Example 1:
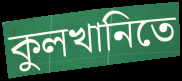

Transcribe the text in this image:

কুলখানিতে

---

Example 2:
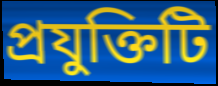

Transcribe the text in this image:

প্রযুক্তিটি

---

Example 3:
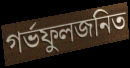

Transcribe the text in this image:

গর্ভফুলজনিত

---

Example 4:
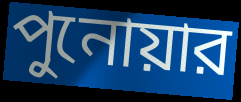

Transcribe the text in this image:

পুনোয়ার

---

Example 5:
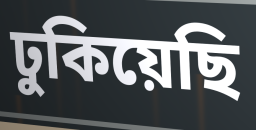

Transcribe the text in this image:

ঢুকিয়েছি